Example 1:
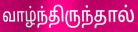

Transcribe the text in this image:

வாழ்ந்திருந்தால்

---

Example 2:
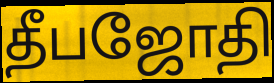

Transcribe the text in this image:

தீபஜோதி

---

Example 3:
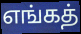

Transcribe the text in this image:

எங்கத்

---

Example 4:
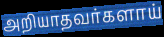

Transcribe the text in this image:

அறியாதவர்களாய்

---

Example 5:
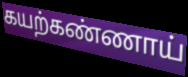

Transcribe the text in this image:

கயற்கண்ணாய்